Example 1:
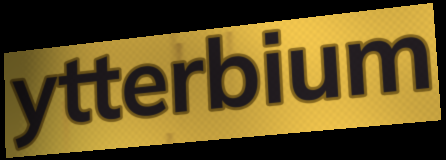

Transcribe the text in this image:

ytterbium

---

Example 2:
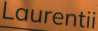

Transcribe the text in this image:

Laurentii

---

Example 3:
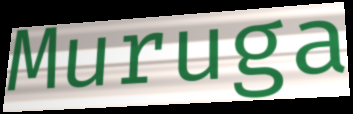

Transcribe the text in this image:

Muruga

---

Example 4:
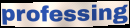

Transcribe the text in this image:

professing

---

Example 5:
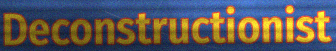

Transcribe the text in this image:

Deconstructionist